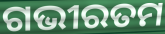
ଗଭୀରତମ